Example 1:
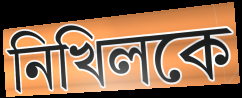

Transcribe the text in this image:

নিখিলকে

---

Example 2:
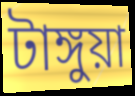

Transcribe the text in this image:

টাঙ্গুয়া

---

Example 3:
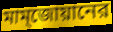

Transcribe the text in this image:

মাম্জোয়ানের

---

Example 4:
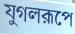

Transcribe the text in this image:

যুগলরূপে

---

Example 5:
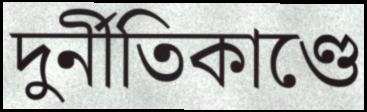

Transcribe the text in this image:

দুর্নীতিকাণ্ডে